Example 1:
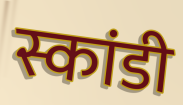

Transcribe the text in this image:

स्कांडी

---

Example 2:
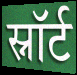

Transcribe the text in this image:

स्नॉर्ट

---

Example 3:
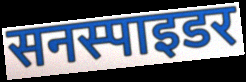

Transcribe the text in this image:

सनस्पाइडर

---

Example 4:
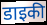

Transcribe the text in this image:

डाइकी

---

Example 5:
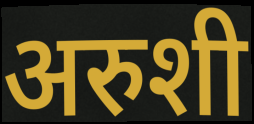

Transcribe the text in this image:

अरुशी